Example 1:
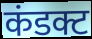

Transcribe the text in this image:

कंडक्ट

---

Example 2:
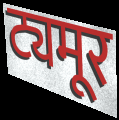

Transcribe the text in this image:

ट्यमूर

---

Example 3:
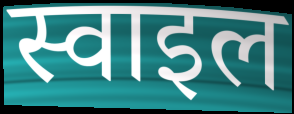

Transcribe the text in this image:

स्वाइल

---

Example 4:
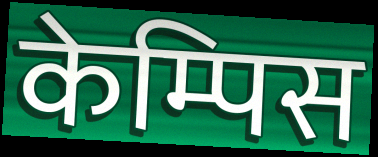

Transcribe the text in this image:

केम्पिस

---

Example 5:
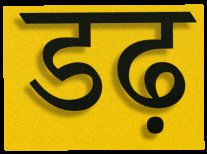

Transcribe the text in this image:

डढ़